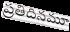
ప్రతిదినమూ